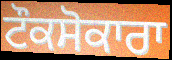
ਟੌਕਸੋਕਾਰਾ